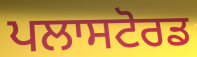
ਪਲਾਸਟੋਰਡ